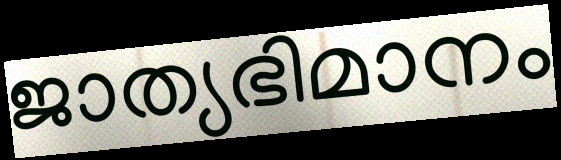
ജാത്യഭിമാനം